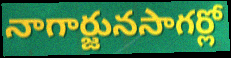
నాగార్జునసాగర్లో